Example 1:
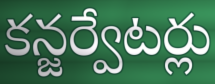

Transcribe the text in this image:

కన్జర్వేటర్లు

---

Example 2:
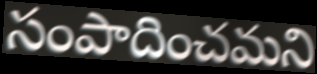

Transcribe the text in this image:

సంపాదించమని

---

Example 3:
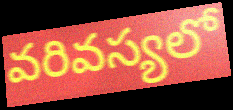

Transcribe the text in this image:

వరివస్యలో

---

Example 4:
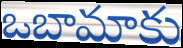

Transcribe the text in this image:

ఒబామాకు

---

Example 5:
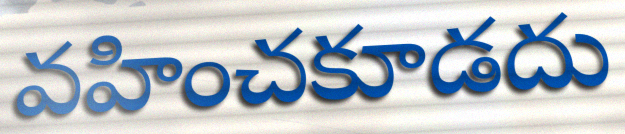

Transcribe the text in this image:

వహించకూడదు